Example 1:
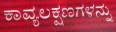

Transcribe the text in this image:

ಕಾವ್ಯಲಕ್ಷಣಗಳನ್ನು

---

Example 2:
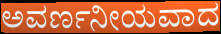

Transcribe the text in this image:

ಅವರ್ಣನೀಯವಾದ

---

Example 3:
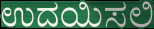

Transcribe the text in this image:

ಉದಯಿಸಲಿ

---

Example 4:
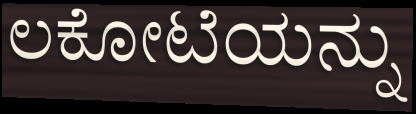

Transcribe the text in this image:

ಲಕೋಟೆಯನ್ನು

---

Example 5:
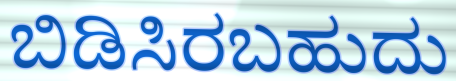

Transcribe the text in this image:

ಬಿಡಿಸಿರಬಹುದು